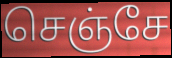
செஞ்சே